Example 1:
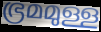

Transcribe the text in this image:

ഭ്രമമുള്ള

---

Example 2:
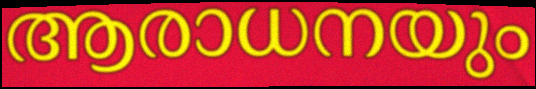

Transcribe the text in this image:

ആരാധനയും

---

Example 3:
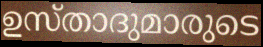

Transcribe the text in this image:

ഉസ്താദുമാരുടെ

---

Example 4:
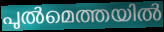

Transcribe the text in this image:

പുൽമെത്തയിൽ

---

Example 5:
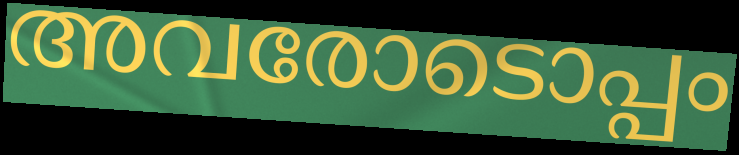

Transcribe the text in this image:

അവരോടൊപ്പം